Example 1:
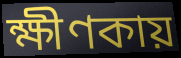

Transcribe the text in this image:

ক্ষীণকায়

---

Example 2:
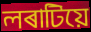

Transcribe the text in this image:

লৰাটিয়ে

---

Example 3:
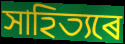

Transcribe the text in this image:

সাহিত্যৰে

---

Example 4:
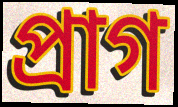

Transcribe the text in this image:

প্ৰাগ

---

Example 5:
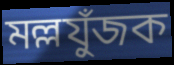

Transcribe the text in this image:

মল্লযুঁজক